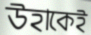
উহাকেই